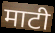
माटी